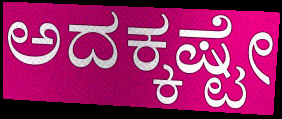
ಅದಕ್ಕಷ್ಟೇ